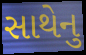
સાથેનુ